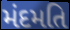
મંદમતિ